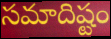
సమాదిష్టం